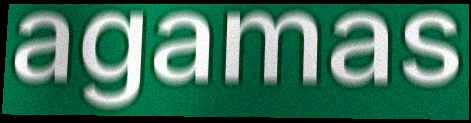
agamas